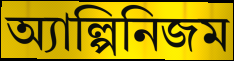
অ্যাল্পিনিজম